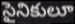
సైనికులూ